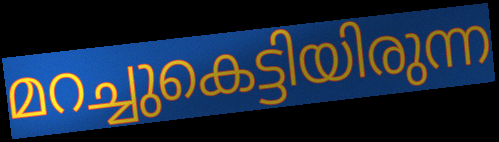
മറച്ചുകെട്ടിയിരുന്ന